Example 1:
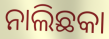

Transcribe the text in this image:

ନାଲିଛକା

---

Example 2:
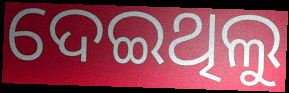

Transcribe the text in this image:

ଦେଇଥିଲୁ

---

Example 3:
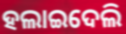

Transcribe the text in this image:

ହଲାଇଦେଲି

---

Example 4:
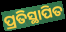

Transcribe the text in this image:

ପ୍ରତିସ୍ଥାପିତ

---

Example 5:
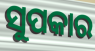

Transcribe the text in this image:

ସୁପକାର